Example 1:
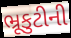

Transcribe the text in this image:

ભ્રૂકુટીની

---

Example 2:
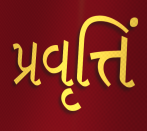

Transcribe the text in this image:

પ્રવૃત્તિં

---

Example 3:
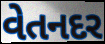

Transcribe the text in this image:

વેતનદર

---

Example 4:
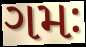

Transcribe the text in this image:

ગમઃ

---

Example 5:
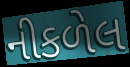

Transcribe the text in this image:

નીકળેલ